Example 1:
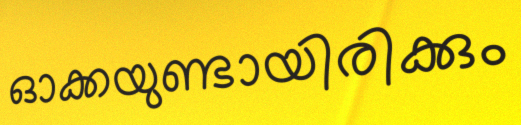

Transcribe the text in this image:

ഓക്കയുണ്ടായിരിക്കും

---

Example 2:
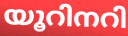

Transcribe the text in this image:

യൂറിനറി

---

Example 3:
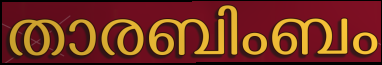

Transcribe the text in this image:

താരബിംബം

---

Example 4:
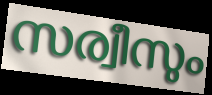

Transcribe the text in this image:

സര്വീസും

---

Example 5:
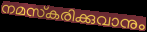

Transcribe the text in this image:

നമസ്‌കരിക്കുവാനും